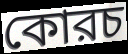
কোরচ